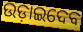
ଉଡ଼ାଇଦେବ